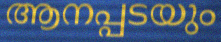
ആനപ്പടയും